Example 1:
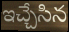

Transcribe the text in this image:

ఇచ్చేసిన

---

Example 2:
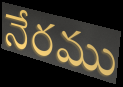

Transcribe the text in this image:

నేరము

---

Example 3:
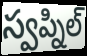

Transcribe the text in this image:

స్వప్నిల్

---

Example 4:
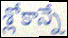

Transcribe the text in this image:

శ్లోకాన్నే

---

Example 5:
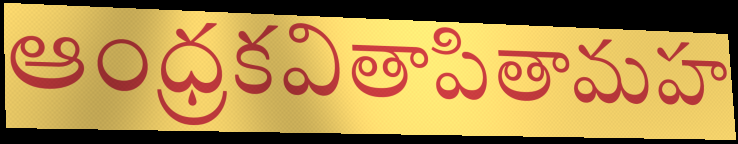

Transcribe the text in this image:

ఆంధ్రకవితాపితామహ